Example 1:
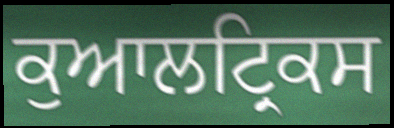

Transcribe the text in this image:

ਕੁਆਲਟ੍ਰਿਕਸ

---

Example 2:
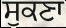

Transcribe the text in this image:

ਸੁਕਣਾ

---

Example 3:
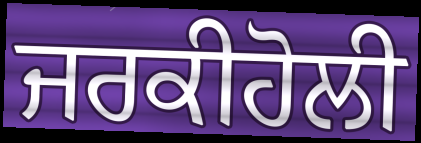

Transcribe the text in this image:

ਜਰਕੀਹੋਲੀ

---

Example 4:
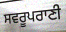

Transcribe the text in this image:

ਸਵਰੂਪਰਾਣੀ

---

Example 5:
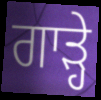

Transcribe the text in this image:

ਗਾੜ੍ਹੇ